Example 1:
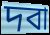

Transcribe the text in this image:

দবা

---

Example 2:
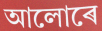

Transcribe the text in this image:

আলোৰে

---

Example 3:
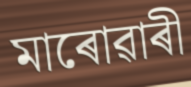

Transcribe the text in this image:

মাৰোৱাৰী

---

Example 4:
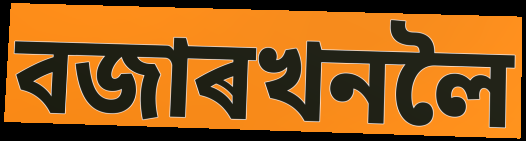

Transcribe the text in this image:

বজাৰখনলৈ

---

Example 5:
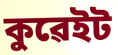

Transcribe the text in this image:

কুৱেইট